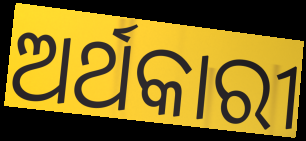
ଅର୍ଥକାରୀ